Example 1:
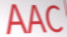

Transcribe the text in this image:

AAC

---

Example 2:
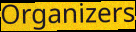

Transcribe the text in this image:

Organizers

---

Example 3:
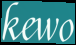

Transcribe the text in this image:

kewo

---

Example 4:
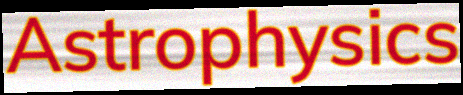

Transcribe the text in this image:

Astrophysics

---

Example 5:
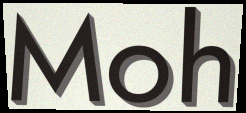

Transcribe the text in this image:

Moh